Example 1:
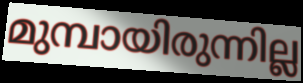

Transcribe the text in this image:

മുമ്പായിരുന്നില്ല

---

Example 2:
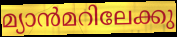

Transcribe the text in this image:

മ്യാൻമറിലേക്കു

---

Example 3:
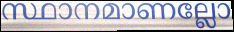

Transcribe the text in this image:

സ്ഥാനമാണല്ലോ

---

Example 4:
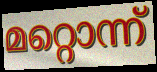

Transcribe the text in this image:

മറ്റൊന്ന്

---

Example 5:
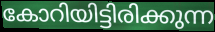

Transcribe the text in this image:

കോറിയിട്ടിരിക്കുന്ന